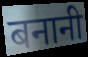
बनानी